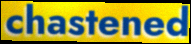
chastened